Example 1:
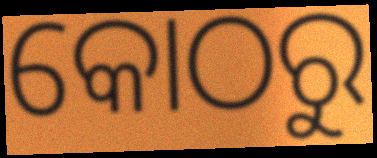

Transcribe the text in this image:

କୋଠରୁ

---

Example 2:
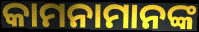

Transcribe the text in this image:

କାମନାମାନଙ୍କ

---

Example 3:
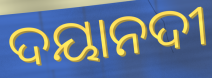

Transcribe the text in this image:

ଦୟାନଦୀ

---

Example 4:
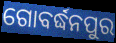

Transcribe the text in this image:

ଗୋବର୍ଦ୍ଧନପୁର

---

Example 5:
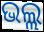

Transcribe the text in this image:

ଭଲ୍ଲ